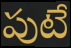
పుటే